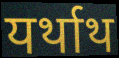
यर्थाथ